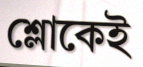
শ্লোকেই